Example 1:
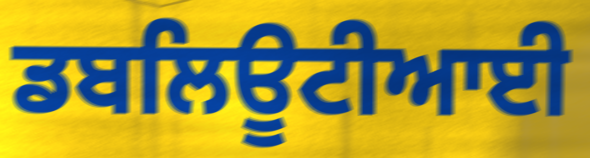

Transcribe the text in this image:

ਡਬਲਿਊਟੀਆਈ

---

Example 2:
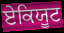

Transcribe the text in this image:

ਏਕਿਯੂਟ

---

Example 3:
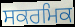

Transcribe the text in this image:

ਸਕਰਮਿਕ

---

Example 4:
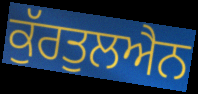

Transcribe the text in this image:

ਕੁੱਰਤੁਲਐਨ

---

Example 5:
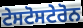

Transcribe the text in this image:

ਟੇਸਟੋਸਟੇਰੋਨ